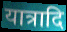
यात्रादि